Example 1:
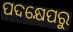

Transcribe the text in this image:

ପଦକ୍ଷେପରୁ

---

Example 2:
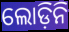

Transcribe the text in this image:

ଲୋଡ଼ିନି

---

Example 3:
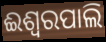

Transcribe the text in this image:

ଈଶ୍ୱରପାଲି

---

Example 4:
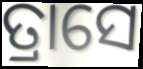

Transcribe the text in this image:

ତ୍ରାସେ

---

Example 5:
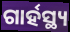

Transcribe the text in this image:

ଗାର୍ହସ୍ଥ୍ୟ